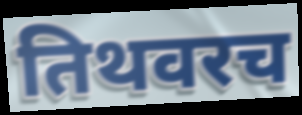
तिथवरच